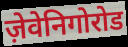
ज़ेवेनिगोरोड